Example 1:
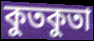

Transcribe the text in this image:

কুতকুতা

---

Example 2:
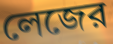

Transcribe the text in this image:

লেজের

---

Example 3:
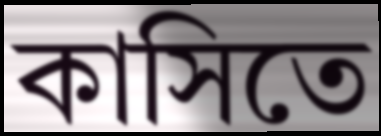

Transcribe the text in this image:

কাসিতে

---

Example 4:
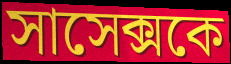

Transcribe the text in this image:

সাসেক্সকে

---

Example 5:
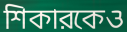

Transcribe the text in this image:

শিকারকেও